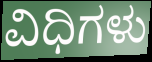
ವಿಧಿಗಳು